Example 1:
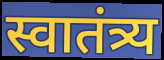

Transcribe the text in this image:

स्वातंत्र्य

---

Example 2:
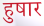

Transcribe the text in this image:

हुषार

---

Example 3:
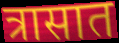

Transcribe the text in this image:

त्रासात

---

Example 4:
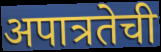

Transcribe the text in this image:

अपात्रतेची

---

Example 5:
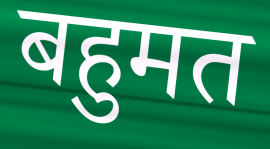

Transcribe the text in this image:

बहुमत